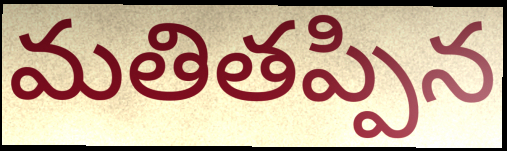
మతితప్పిన